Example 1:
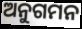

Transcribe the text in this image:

ଅନୁଗମନ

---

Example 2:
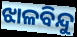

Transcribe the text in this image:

ଝାଳବିନ୍ଦୁ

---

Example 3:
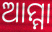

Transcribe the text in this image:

ଆମ୍ମା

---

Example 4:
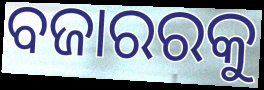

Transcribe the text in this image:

ବଜାରରକୁ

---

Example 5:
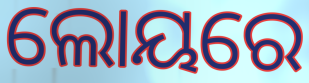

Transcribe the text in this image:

ଲୋୟରେ